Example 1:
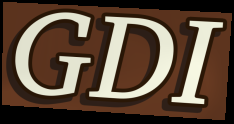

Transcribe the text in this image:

GDI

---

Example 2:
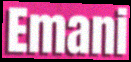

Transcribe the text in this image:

Emani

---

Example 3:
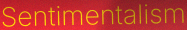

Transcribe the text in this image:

Sentimentalism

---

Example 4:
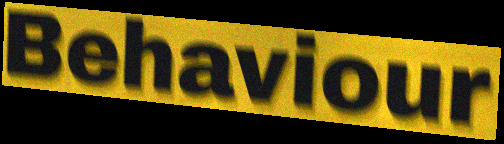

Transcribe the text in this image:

Behaviour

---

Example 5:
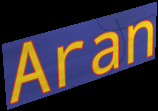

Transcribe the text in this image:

Aran